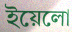
ইয়েলো